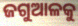
ଜଗୁଆଳକୁ